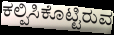
ಕಲ್ಪಿಸಿಕೊಟ್ಟಿರುವ